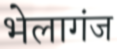
भेलागंज